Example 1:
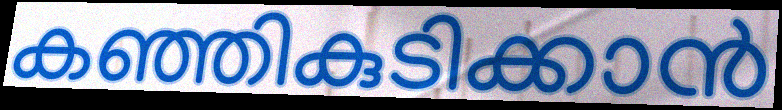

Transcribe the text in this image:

കഞ്ഞികുടിക്കാൻ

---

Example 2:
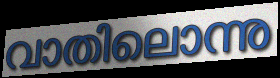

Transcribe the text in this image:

വാതിലൊന്നു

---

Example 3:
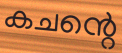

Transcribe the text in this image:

കചന്റെ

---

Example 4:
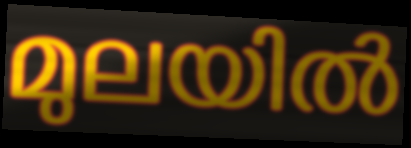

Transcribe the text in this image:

മുലയിൽ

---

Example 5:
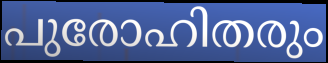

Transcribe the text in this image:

പുരോഹിതരും